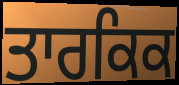
ਤਾਰਕਿਕ